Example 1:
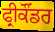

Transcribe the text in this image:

ਫ੍ਰੀਕੌਂਡਰ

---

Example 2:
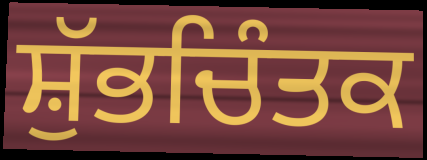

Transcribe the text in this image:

ਸ਼ੁੱਭਚਿੰਤਕ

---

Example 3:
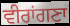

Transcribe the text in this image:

ਵੀਰਾਂਗਣਾ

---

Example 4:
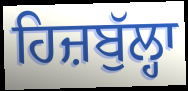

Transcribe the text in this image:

ਹਿਜ਼ਬੁੱਲ੍ਹਾ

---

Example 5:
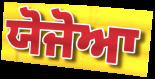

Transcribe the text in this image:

ਯੋਜੋਆ